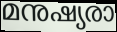
മനുഷ്യരാ